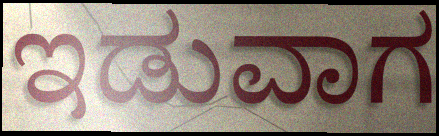
ಇಡುವಾಗ